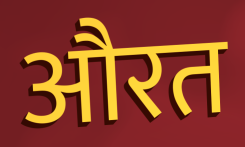
औरत